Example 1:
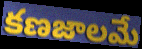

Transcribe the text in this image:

కణజాలమే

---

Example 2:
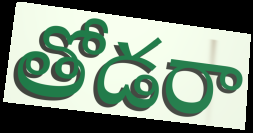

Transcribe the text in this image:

తోడరా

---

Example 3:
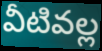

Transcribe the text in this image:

వీటివల్ల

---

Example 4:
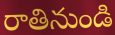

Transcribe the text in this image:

రాతినుండి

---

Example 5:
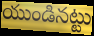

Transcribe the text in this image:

యుండినట్టు